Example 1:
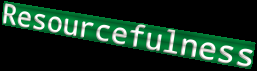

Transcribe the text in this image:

Resourcefulness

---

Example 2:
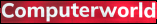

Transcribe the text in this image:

Computerworld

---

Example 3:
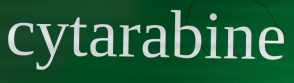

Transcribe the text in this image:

cytarabine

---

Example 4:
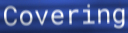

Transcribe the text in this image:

Covering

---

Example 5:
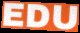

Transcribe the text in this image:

EDU